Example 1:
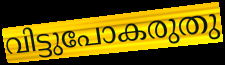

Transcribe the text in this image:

വിട്ടുപോകരുതു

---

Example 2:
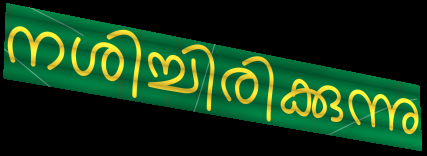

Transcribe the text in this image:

നശിച്ചിരിക്കുന്നു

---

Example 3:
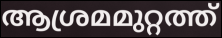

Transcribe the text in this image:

ആശ്രമമുറ്റത്ത്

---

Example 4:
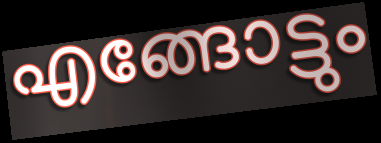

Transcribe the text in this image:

എങ്ങോട്ടും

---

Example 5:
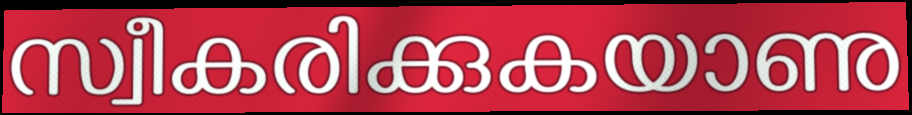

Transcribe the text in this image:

സ്വീകരിക്കുകയാണു